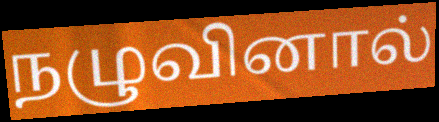
நழுவினால்